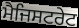
ਮੈਜਿਸਟਰੇਟ